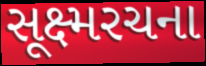
સૂક્ષ્મરચના